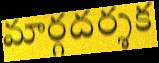
మార్గదర్శక